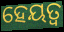
ହେୟତ୍ୱ